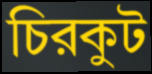
চিরকুট